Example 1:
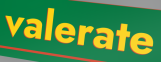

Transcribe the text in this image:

valerate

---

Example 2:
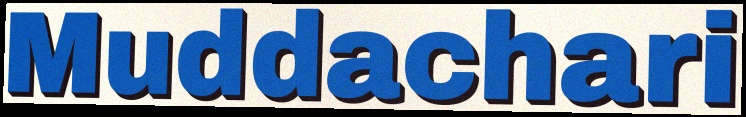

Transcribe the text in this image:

Muddachari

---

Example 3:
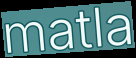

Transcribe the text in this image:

matla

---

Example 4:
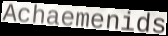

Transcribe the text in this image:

Achaemenids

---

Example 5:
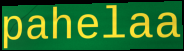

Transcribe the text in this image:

pahelaa